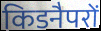
किडनैपरों